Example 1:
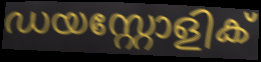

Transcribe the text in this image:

ഡയസ്റ്റോളിക്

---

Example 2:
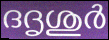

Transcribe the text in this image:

ദദൃശുർ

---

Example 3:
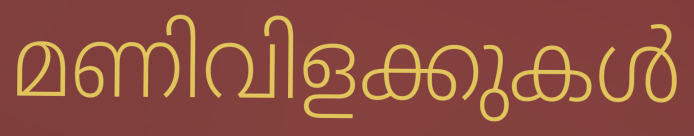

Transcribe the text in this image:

മണിവിളക്കുകൾ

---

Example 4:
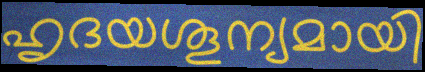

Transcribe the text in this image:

ഹൃദയശൂന്യമായി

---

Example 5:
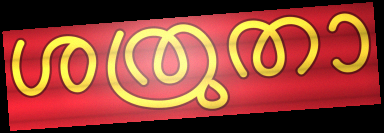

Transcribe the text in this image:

ശത്രുതാ